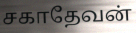
சகாதேவன்